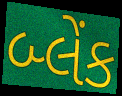
બ્લેંક